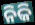
ନିକି